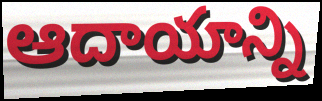
ఆదాయాన్ని